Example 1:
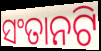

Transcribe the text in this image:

ସଂତାନଟି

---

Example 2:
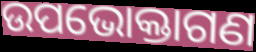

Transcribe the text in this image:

ଉପଭୋକ୍ତାଗଣ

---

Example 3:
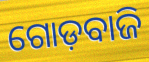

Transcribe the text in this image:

ଗୋଡ଼ବାଜି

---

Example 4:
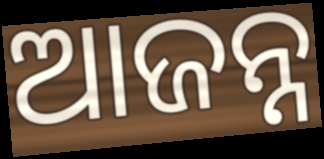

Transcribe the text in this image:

ଆଜନ୍ନ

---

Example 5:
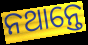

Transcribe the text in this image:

ନଥାନ୍ତେ